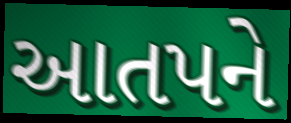
આતપને